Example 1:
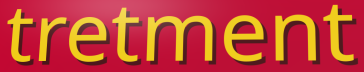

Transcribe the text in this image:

tretment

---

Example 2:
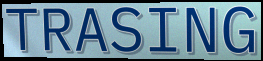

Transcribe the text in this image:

TRASING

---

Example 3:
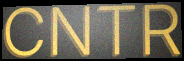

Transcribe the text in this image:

CNTR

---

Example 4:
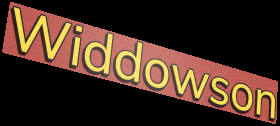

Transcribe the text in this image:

Widdowson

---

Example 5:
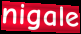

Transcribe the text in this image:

nigale